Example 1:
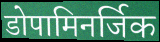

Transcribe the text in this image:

डोपामिनर्जिक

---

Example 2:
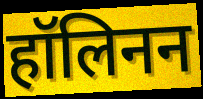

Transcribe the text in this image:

हॉलिनन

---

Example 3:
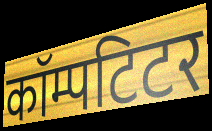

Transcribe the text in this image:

कॉम्पटिटर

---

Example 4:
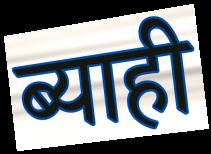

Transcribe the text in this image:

ब्याही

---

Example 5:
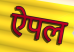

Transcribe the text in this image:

ऐपल